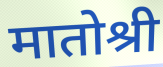
मातोश्री